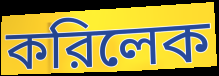
করিলেক